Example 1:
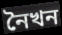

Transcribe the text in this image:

নৈখন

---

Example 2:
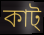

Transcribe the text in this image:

কাট্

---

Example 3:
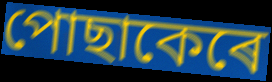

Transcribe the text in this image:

পোছাকেৰে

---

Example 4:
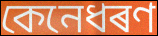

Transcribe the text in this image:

কেনেধৰণ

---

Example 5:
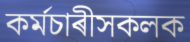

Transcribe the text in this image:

কৰ্মচাৰীসকলক